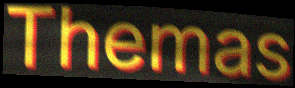
Themas